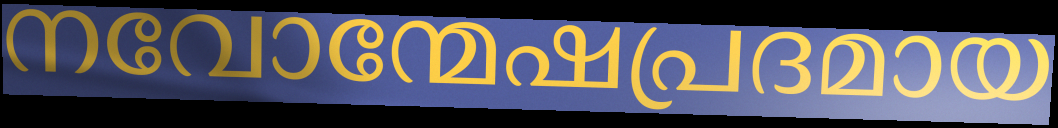
നവോന്മേഷപ്രദമായ